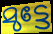
മുട്ടേ